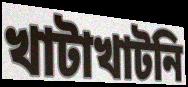
খাটাখাটনি